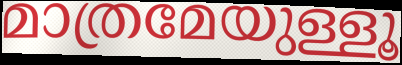
മാത്രമേയുള്ളൂ